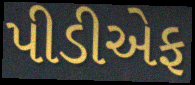
પીડીએફ